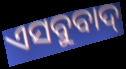
ଏସବୁବାଦ୍